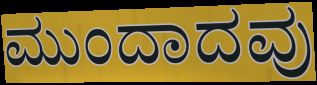
ಮುಂದಾದವು